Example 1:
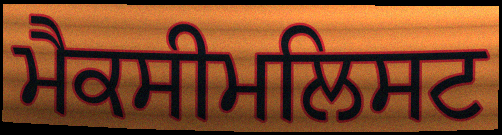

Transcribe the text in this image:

ਮੈਕਸੀਮਲਿਸਟ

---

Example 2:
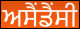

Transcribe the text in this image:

ਅਸੈਂਡੈਂਸੀ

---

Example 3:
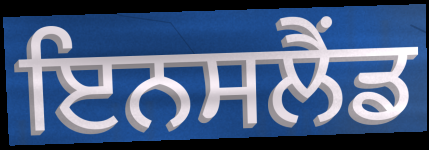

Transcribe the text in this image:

ਇਨਸਲੈਂਡ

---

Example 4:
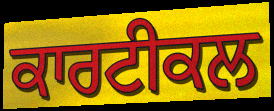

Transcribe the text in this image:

ਕਾਰਟੀਕਲ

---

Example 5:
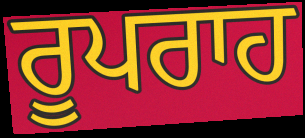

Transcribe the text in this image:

ਰੂਪਰਾਹ